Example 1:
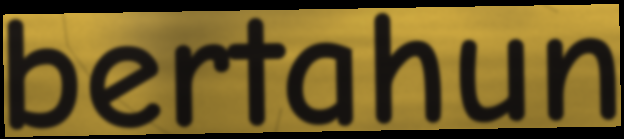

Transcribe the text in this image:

bertahun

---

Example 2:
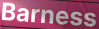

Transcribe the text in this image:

Barness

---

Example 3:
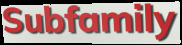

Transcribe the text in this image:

Subfamily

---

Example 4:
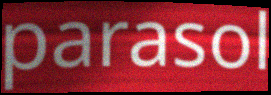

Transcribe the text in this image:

parasol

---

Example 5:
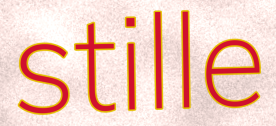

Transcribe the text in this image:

stille